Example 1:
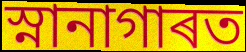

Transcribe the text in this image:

স্নানাগাৰত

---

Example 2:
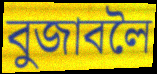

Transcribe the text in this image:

বুজাবলৈ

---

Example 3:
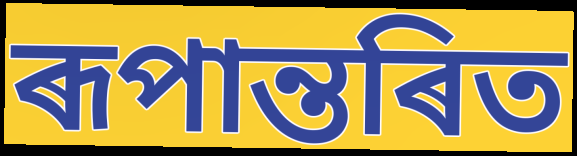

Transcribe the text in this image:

ৰূপান্তৰিত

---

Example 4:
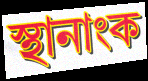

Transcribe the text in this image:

স্থানাংক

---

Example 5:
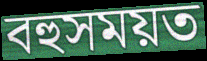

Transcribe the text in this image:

বহুসময়ত